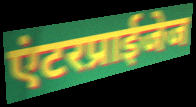
एंटरप्राईजेज